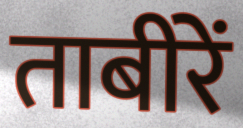
ताबीरें